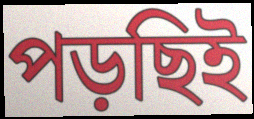
পড়ছিই